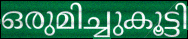
ഒരുമിച്ചുകൂട്ടി